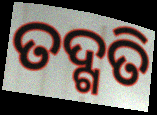
ତଦ୍ଗତି